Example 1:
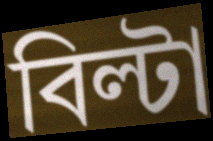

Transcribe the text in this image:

বিল্টা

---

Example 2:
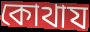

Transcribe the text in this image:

কোথায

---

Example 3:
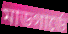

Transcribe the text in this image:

মাডগার্ডে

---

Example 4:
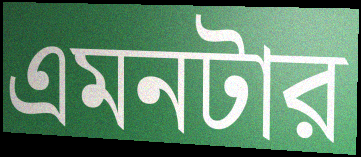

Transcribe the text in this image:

এমনটার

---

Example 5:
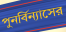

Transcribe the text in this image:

পুনর্বিন্যাসের